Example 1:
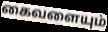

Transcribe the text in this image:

கைவளையும்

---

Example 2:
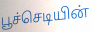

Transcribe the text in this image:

பூச்செடியின்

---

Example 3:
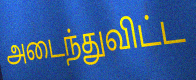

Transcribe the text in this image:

அடைந்துவிட்ட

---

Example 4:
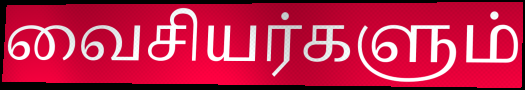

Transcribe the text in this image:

வைசியர்களும்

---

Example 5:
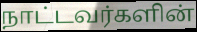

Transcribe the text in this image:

நாட்டவர்களின்